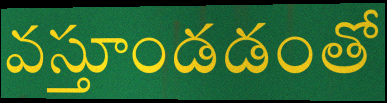
వస్తూండడంతో